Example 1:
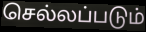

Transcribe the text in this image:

செல்லப்படும்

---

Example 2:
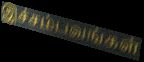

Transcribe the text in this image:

இச்சம்பவங்கள்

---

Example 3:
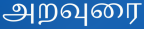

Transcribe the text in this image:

அறவுரை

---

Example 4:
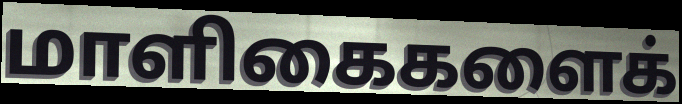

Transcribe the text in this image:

மாளிகைகளைக்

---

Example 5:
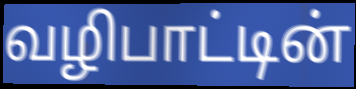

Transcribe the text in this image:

வழிபாட்டின்